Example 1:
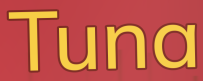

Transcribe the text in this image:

Tuna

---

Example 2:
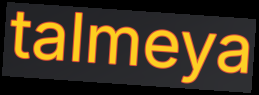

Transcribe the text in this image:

talmeya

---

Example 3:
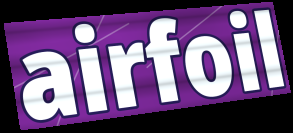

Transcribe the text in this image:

airfoil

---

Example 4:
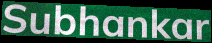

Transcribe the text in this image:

Subhankar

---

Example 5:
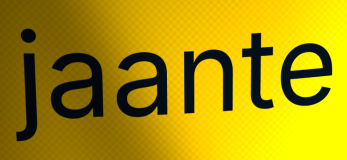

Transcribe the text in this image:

jaante